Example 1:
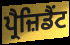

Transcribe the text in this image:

ਪ੍ਰੈਜ਼ਿਡੈਂਟ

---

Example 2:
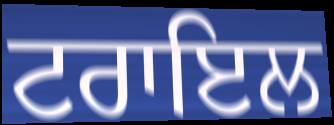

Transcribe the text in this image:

ਟਰਾਇਲ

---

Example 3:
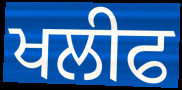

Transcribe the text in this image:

ਖਲੀਫ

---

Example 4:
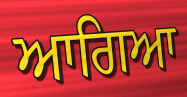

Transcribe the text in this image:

ਆਗਿਆ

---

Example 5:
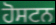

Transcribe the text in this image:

ਹੋਸਟਨ